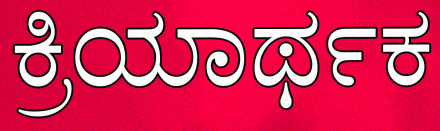
ಕ್ರಿಯಾರ್ಥಕ